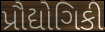
પ્રૌદ્યોગિકી